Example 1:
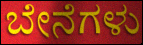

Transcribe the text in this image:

ಬೇನೆಗಳು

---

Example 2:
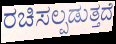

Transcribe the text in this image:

ರಚಿಸಲ್ಪಡುತ್ತದೆ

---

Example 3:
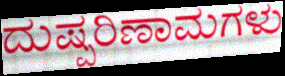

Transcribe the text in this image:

ದುಷ್ಪರಿಣಾಮಗಳು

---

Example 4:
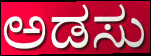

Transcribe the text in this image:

ಅಡಸು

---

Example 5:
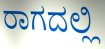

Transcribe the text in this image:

ರಾಗದಲ್ಲಿ